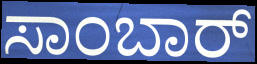
ಸಾಂಬಾರ್